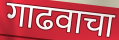
गाढवाचा